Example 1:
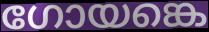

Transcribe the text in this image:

ഗോയങ്കെ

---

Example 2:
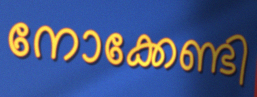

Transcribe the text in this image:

നോക്കേണ്ടി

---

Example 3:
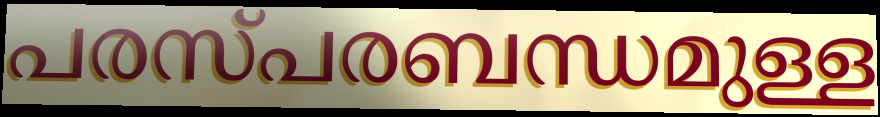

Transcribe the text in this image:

പരസ്പരബന്ധമുള്ള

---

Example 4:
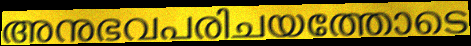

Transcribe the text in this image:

അനുഭവപരിചയത്തോടെ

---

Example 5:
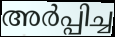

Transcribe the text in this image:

അർപ്പിച്ച